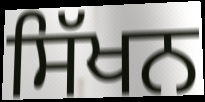
ਸਿੱਖਨ